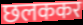
छलककर